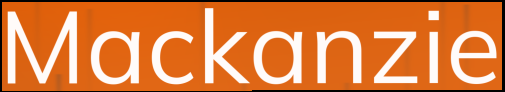
Mackanzie